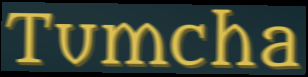
Tumcha